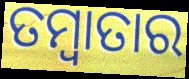
ତମ୍ବାତାର